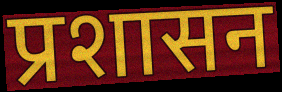
प्रशासन